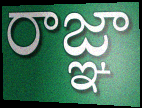
రాజ్ఞా